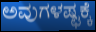
ಅವುಗಳಷ್ಟಕ್ಕೆ